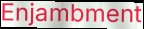
Enjambment